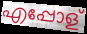
എപ്പോള്